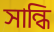
সান্ধি